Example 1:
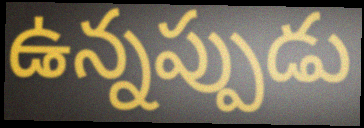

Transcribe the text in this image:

ఉన్నప్పుడు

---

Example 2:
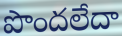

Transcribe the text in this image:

పొందలేదా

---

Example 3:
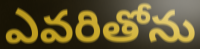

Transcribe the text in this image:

ఎవరితోను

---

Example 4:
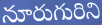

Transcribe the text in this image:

నూరుగురిని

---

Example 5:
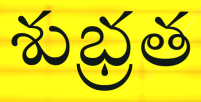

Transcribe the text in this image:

శుభ్రత